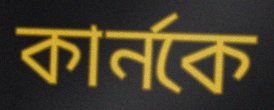
কার্নকে